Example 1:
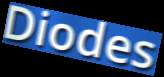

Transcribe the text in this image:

Diodes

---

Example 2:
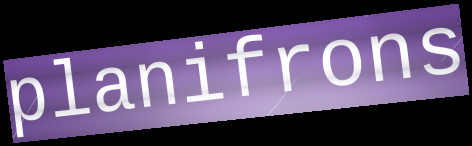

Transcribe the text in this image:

planifrons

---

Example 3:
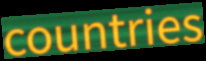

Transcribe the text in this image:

countries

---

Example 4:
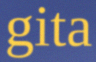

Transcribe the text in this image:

gita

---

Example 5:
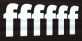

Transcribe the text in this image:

ffffff